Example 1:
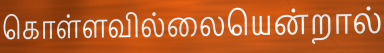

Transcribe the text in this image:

கொள்ளவில்லையென்றால்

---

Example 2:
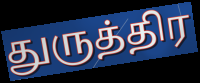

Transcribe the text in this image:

துருத்திர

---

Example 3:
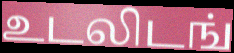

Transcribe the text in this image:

உடலிடங்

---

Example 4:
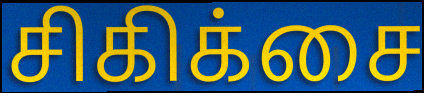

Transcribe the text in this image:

சிகிக்சை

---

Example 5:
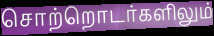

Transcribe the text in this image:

சொற்றொடர்களிலும்